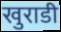
खुराडी